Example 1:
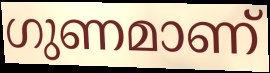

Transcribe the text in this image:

ഗുണമാണ്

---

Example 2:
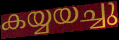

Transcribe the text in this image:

കയ്യയച്ചു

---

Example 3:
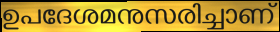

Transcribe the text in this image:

ഉപദേശമനുസരിച്ചാണ്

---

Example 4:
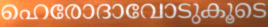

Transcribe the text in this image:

ഹെരോദാവോടുകൂടെ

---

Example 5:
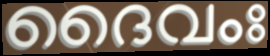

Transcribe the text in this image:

ദൈവംഃ